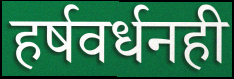
हर्षवर्धनही